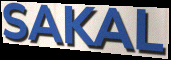
SAKAL